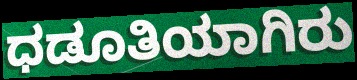
ಧಡೂತಿಯಾಗಿರು